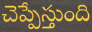
చెప్పేస్తుంది